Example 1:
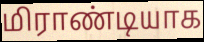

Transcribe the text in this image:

மிராண்டியாக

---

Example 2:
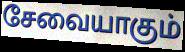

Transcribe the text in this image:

சேவையாகும்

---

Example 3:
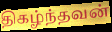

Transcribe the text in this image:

திகழ்ந்தவன்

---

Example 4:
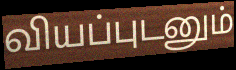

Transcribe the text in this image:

வியப்புடனும்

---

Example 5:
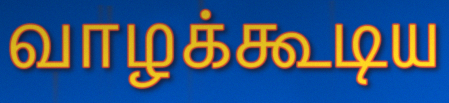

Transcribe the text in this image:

வாழக்கூடிய